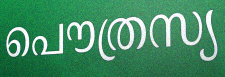
പൌത്രസ്യ